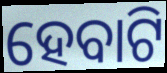
ହେବାଟି